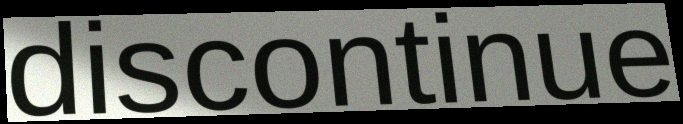
discontinue